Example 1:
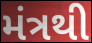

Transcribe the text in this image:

મંત્રથી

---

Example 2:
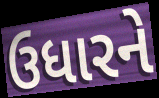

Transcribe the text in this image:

ઉધારને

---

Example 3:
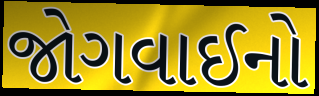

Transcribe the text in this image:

જોગવાઈનો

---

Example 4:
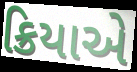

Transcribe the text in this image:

ક્રિયાએ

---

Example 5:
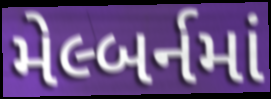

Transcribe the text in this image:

મેલ્બર્નમાં